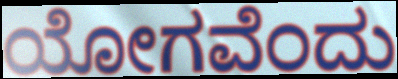
ಯೋಗವೆಂದು